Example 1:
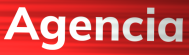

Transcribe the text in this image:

Agencia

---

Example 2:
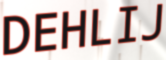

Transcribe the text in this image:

DEHLIJ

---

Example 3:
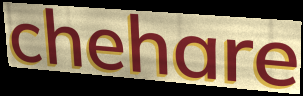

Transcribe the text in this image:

chehare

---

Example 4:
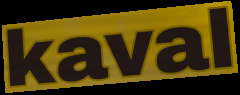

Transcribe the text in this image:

kaval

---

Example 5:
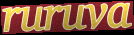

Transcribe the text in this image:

ruruva